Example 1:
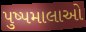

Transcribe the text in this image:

પુષ્પમાલાઓ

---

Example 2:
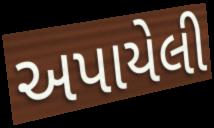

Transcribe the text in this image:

અપાયેલી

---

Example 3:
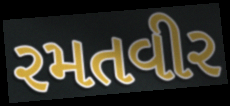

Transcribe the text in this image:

રમતવીર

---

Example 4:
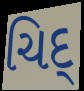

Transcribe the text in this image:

ચિદ્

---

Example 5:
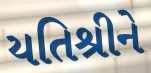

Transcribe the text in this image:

યતિશ્રીને